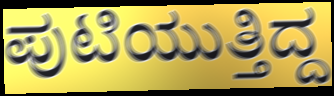
ಪುಟಿಯುತ್ತಿದ್ದ